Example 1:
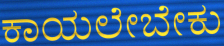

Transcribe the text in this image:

ಕಾಯಲೇಬೇಕು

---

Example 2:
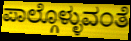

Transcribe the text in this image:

ಪಾಲ್ಗೊಳ್ಳುವಂತೆ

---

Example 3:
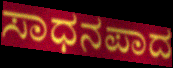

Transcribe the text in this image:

ಸಾಧನಪಾದ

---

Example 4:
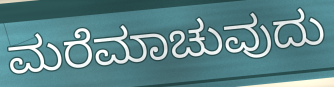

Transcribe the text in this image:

ಮರೆಮಾಚುವುದು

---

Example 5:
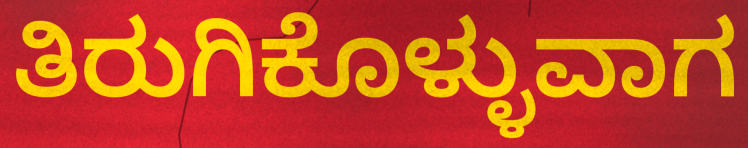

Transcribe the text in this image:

ತಿರುಗಿಕೊಳ್ಳುವಾಗ